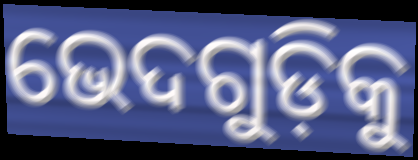
ଭେଦଗୁଡ଼ିକୁ